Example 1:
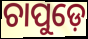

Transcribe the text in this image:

ଚାପୁଡ଼େ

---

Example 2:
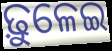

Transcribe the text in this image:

ଢ଼ୁଳେଇ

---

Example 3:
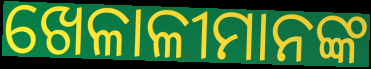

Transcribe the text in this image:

ଖେଳାଳୀମାନଙ୍କ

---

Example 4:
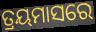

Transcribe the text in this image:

ତ୍ରୟମାସରେ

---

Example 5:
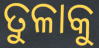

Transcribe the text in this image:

ତୁଳାକୁ